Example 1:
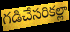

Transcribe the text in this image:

గడిచేసరికల్లా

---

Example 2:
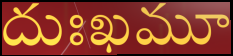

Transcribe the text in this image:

దుఃఖమూ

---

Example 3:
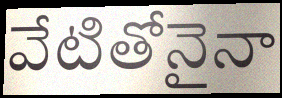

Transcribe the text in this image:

వేటితోనైనా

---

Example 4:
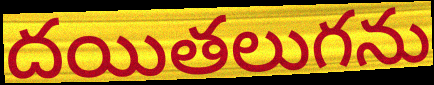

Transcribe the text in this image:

దయితలుగను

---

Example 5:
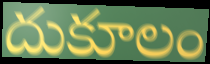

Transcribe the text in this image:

దుకూలం